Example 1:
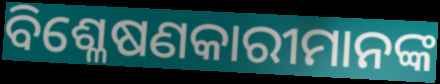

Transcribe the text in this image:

ବିଶ୍ଳେଷଣକାରୀମାନଙ୍କ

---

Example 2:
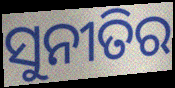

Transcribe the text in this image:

ସୁନୀତିର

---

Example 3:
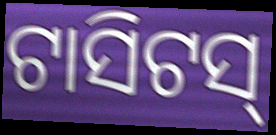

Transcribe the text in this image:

ଟାସିଟସ୍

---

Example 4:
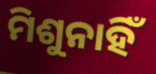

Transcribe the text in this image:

ମିଶୁନାହିଁ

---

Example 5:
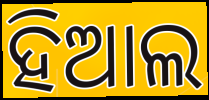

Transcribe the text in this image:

ହିଆଲ